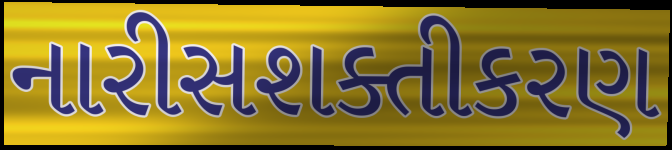
નારીસશક્તીકરણ